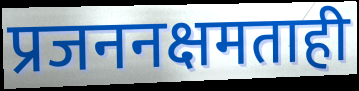
प्रजननक्षमताही